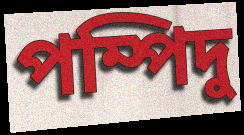
পম্পিদু